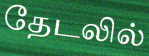
தேடலில்